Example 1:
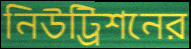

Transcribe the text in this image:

নিউট্রিশনের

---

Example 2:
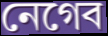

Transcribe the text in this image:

নেগেব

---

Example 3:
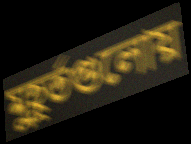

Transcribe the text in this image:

মুহূর্তগুলোয়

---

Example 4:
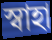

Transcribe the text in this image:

স্বাহা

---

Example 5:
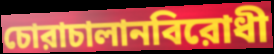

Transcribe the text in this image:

চোরাচালানবিরোধী